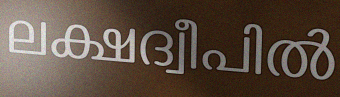
ലക്ഷദ്വീപിൽ